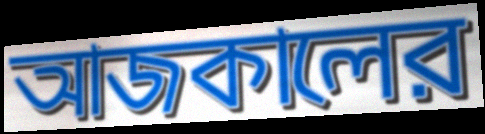
আজকালের